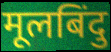
मूलबिंदु